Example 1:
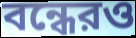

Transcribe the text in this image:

বন্ধেরও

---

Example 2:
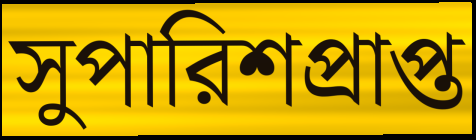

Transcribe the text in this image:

সুপারিশপ্রাপ্ত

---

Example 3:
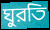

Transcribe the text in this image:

ঘুরতি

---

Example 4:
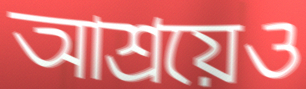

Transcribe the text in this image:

আশ্রয়েও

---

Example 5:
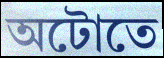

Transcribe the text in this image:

অটোতে